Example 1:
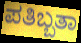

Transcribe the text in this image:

ಪತಿಬ್ಬತಾ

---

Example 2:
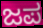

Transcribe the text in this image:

ಜಪ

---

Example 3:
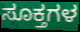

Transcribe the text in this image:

ಸೂಕ್ತಗಳ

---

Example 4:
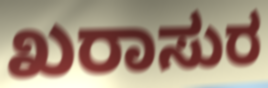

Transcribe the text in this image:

ಖರಾಸುರ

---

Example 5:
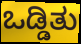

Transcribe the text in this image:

ಒಡ್ಡಿತು